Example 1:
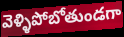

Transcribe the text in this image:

వెళ్ళిపోబోతుండగా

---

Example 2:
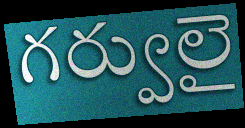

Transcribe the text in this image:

గర్వులై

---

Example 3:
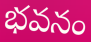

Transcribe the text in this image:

భవనం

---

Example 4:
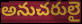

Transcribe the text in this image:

అనుచరులై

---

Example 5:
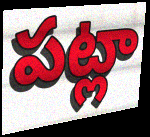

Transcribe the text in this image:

పట్లా